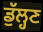
ਡੁੱਲ੍ਹਣ